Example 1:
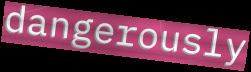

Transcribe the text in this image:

dangerously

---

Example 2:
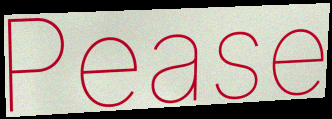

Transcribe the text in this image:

Pease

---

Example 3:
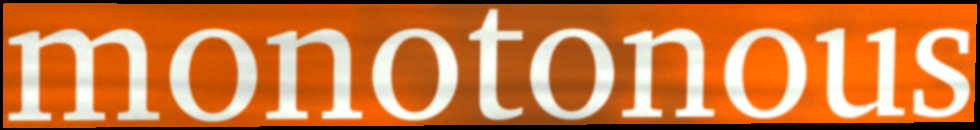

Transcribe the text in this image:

monotonous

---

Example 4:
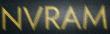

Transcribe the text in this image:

NVRAM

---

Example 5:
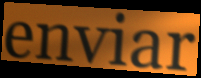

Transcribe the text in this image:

enviar